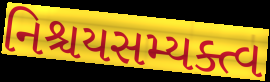
નિશ્ચયસમ્યક્ત્વ